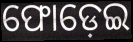
ଫୋଡ଼େଇ